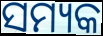
ସମ୍ୟକ